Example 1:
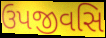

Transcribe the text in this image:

ઉપજીવસિ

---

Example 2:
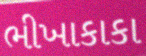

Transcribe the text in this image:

ભીખાકાકા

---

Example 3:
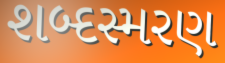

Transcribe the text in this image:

શબ્દસ્મરણ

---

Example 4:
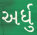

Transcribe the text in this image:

અર્ધુ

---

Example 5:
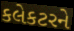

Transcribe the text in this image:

કલેકટરને